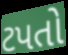
ટપતો